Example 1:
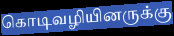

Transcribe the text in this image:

கொடிவழியினருக்கு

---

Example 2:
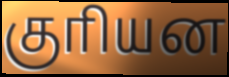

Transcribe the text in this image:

குரியன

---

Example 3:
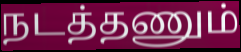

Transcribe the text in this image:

நடத்தணும்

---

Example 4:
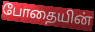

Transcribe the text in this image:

போதையின்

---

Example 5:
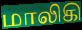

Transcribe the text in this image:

மாலிகி